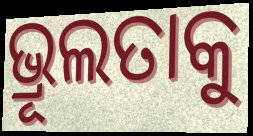
ଭ୍ରୂଲତାକୁ